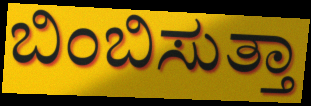
ಬಿಂಬಿಸುತ್ತಾ